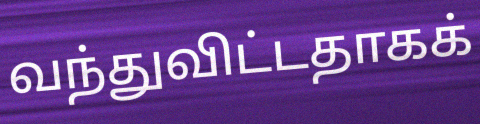
வந்துவிட்டதாகக்